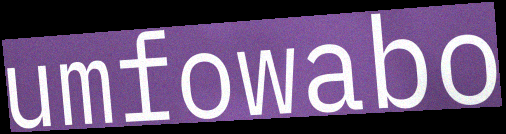
umfowabo